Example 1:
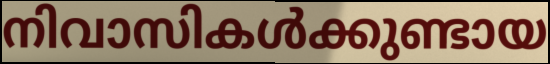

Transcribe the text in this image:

നിവാസികൾക്കുണ്ടായ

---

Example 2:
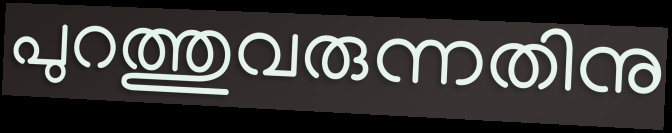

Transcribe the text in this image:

പുറത്തുവരുന്നതിനു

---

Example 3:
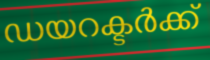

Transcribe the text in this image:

ഡയറക്ടർക്ക്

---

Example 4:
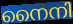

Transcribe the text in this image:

നൈനി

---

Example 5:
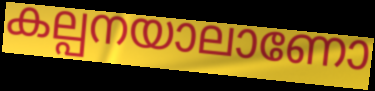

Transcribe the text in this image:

കല്പനയാലാണോ